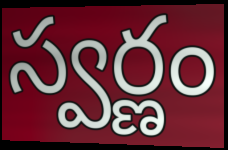
స్వర్ణం